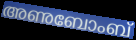
അണുബോംബ്